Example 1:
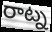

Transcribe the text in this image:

రాట్న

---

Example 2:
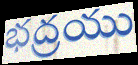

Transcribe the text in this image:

భద్రయు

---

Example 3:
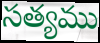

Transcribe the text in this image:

సత్యము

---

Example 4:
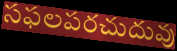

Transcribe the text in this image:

సఫలపరచుదువు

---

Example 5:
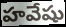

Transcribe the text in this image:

హవేషు